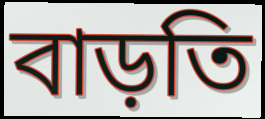
বাড়তি